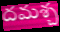
దమశ్చ